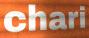
chari